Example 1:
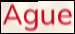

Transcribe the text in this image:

Ague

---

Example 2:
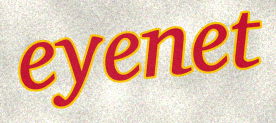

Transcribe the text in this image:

eyenet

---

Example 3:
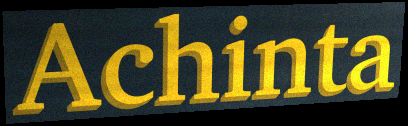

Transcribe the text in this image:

Achinta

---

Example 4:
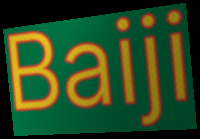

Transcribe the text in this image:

Baiji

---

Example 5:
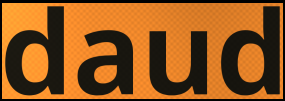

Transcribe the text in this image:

daud